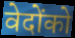
वेदोंको